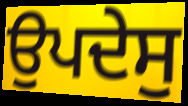
ਉਪਦੇਸੁ